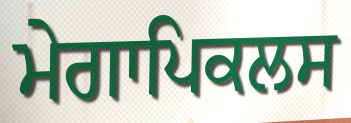
ਮੇਗਾਪਿਕਲਸ